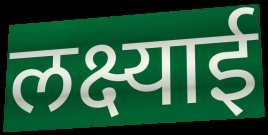
लक्ष्याई